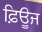
ਫ਼ਿਊਜ